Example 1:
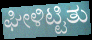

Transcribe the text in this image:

ಘೀಳಿಟ್ಟಿತು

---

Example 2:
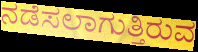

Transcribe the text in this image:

ನಡೆಸಲಾಗುತ್ತಿರುವ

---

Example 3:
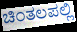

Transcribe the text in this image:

ಚಿಂತಲಪಲ್ಲಿ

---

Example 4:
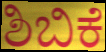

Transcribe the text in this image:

ಶಿಬಿಕೆ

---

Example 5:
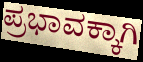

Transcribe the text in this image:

ಪ್ರಭಾವಕ್ಕಾಗಿ